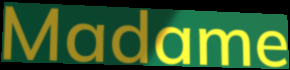
Madame